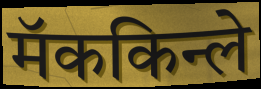
मॅककिन्ले